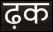
ढ़क